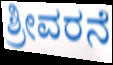
ಶ್ರೀವರನೆ